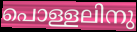
പൊള്ളലിനു